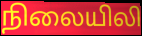
நிலையிலி